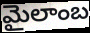
మైలాంబ